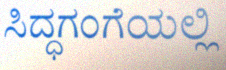
ಸಿದ್ಧಗಂಗೆಯಲ್ಲಿ